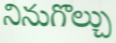
నినుగొల్చు